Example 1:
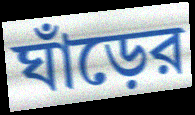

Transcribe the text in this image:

ঘাঁড়ের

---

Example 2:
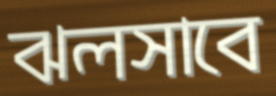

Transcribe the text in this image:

ঝলসাবে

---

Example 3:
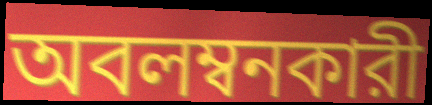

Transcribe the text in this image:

অবলম্বনকারী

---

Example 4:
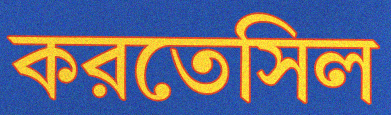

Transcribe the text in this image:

করতেসিল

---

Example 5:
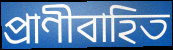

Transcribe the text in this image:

প্রাণীবাহিত